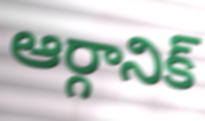
ఆర్గానిక్